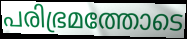
പരിഭ്രമത്തോടെ